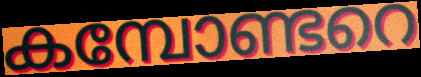
കമ്പോണ്ടറെ